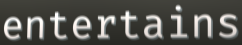
entertains